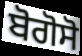
ਬੋਗੋਸੋ